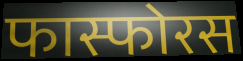
फास्‍फोरस